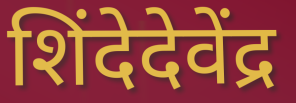
शिंदेदेवेंद्र